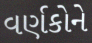
વર્ણકોને